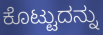
ಕೊಟ್ಟುದನ್ನು